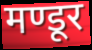
मण्डूर